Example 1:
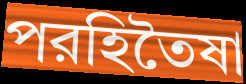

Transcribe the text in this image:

পরহিতৈষা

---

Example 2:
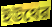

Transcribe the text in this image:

ইউথের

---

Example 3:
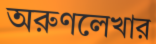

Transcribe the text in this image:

অরুণলেখার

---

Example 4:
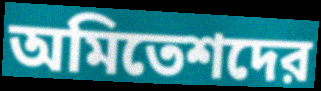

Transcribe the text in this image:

অমিতেশদের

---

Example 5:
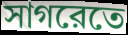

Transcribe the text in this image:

সাগরেতে